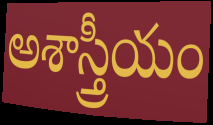
అశాస్త్రీయం